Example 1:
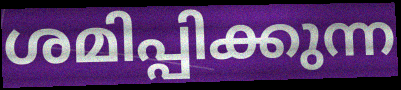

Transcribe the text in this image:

ശമിപ്പിക്കുന്ന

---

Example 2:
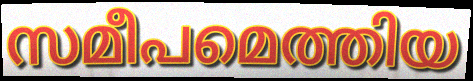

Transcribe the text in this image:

സമീപമെത്തിയ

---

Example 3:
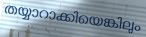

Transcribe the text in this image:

തയ്യാറാക്കിയെങ്കിലും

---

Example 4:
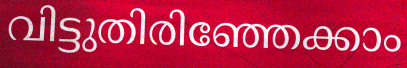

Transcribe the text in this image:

വിട്ടുതിരിഞ്ഞേക്കാം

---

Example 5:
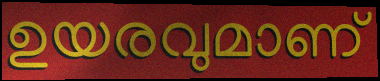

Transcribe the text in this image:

ഉയരവുമാണ്